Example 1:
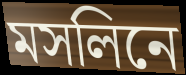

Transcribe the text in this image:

মসলিনে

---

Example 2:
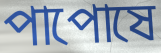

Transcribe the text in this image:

পাপোষে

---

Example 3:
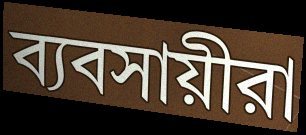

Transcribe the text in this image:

ব্যবসায়ীরা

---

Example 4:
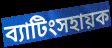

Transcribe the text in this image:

ব্যাটিংসহায়ক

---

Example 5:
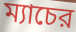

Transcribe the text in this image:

ম্যাচের